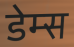
डेम्स